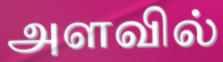
அளவில்